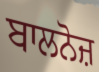
ਬਾਲਨੋਜ਼